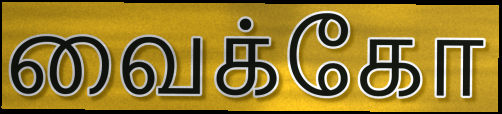
வைக்கோ